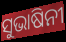
ସୁଭାଷିନୀ